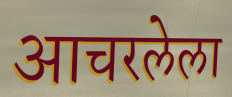
आचरलेला